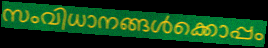
സംവിധാനങ്ങൾക്കൊപ്പം